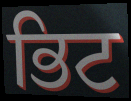
ਭਿਟ